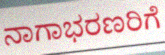
ನಾಗಾಭರಣರಿಗೆ